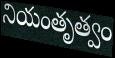
నియంతృత్వం